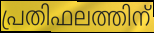
പ്രതിഫലത്തിന്